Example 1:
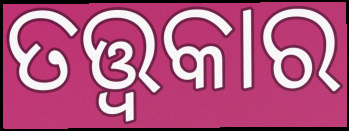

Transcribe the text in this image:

ତତ୍ତ୍ୱକାର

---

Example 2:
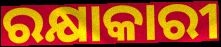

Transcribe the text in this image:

ରକ୍ଷାକାରୀ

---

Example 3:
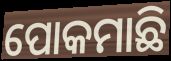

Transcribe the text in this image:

ପୋକମାଛି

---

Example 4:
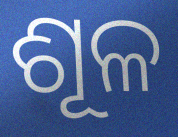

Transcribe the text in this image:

ଶୂଳ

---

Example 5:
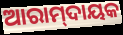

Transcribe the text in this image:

ଆରାମ୍‌ଦାୟକ